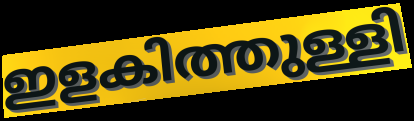
ഇളകിത്തുള്ളി